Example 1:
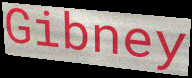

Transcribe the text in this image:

Gibney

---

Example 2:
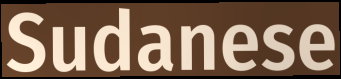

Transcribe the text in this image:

Sudanese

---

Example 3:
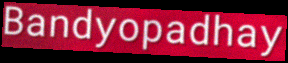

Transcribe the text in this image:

Bandyopadhay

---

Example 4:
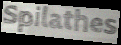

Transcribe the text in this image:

Spilathes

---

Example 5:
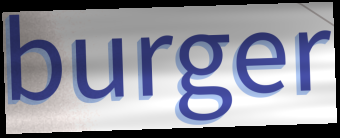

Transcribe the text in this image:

burger